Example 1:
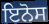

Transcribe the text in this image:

ਇਨੋਸ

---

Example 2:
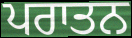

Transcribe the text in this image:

ਪਰਾਤਨ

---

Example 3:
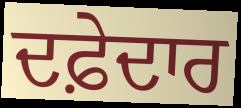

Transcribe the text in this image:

ਦਫ਼ੇਦਾਰ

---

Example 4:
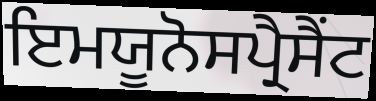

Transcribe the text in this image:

ਇਮਯੂਨੋਸਪ੍ਰੈਸੈਂਟ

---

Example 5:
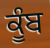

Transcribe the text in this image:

ਕੂੰਬ